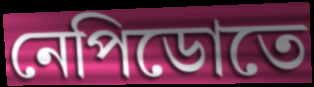
নেপিডোতে